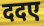
ददए